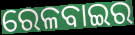
ରେଳବାଇର